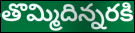
తొమ్మిదిన్నరకి